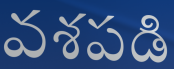
వశపడి